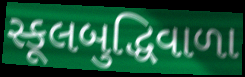
સ્કૂલબુદ્ધિવાળા